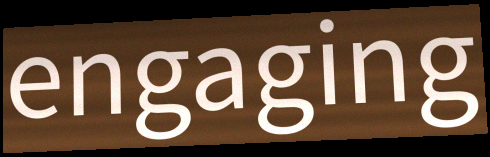
engaging